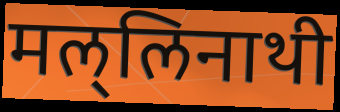
मल्लिनाथी